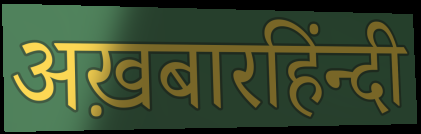
अख़बारहिंन्दी